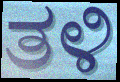
ತಳಿ